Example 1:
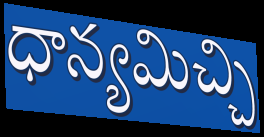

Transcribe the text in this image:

ధాన్యమిచ్చి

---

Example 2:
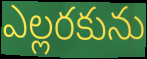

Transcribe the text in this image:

ఎల్లరకును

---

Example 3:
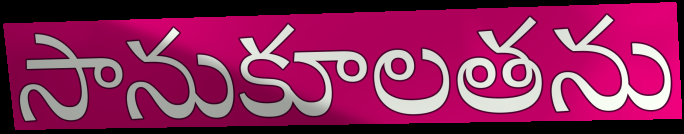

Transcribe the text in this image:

సానుకూలతను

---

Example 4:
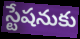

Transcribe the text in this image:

స్టేషనుకు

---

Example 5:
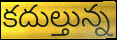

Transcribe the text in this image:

కదుల్తున్న